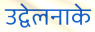
उद्वेलनाके